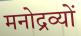
मनोद्रव्यों